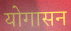
योगासन